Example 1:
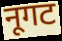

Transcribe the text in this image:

नूगट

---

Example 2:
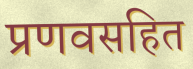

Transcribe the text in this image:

प्रणवसहित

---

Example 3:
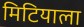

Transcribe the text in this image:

मिटियाला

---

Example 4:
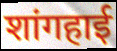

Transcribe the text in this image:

शांगहाई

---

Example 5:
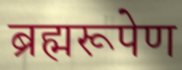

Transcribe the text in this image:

ब्रह्मरूपेण